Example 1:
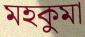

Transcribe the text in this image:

মহকুমা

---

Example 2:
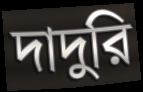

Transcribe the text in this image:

দাদুরি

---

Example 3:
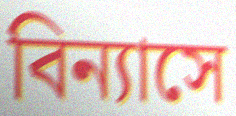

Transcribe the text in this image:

বিন্যাসে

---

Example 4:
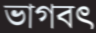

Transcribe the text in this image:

ভাগবৎ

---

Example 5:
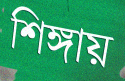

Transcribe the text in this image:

শিঙ্গায়